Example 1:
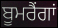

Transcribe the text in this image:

ਬੂਮਰੈਂਗਾਂ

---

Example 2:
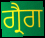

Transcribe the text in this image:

ਗ੍ਰੈਗ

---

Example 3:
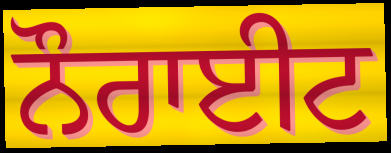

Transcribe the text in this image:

ਨੌਰਾਈਟ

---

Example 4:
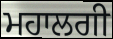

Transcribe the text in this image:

ਮਹਾਲਗੀ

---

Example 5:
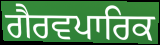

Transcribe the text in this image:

ਗੈਰਵਪਾਰਿਕ